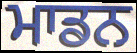
ਮਾਡਨ